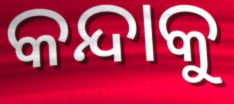
କନ୍ଦାକୁ